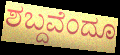
ಶಬ್ದವೆಂದೂ